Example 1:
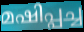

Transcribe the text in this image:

മഷിപ്പച്ച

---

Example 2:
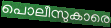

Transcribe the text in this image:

പൊലീസുകാരെ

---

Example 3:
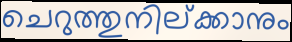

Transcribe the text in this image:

ചെറുത്തുനില്ക്കാനും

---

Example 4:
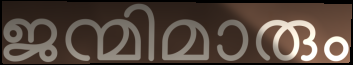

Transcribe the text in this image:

ജന്മിമാരും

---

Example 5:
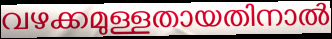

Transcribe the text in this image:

വഴക്കമുള്ളതായതിനാൽ